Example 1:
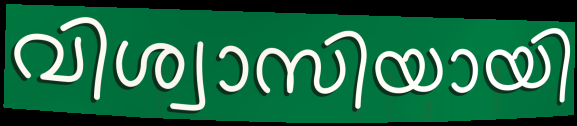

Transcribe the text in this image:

വിശ്വാസിയായി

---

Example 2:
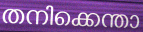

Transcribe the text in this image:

തനിക്കെന്താ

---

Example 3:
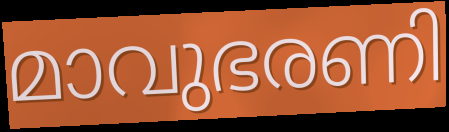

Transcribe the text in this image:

മാവുഭരണി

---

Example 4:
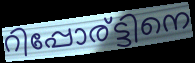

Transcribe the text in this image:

റിപ്പോര്ട്ടിനെ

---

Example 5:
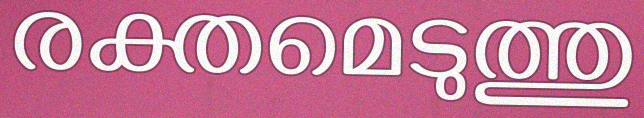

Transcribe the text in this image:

രക്തമെടുത്തു